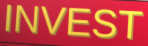
INVEST